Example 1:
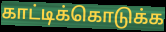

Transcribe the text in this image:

காட்டிக்கொடுக்க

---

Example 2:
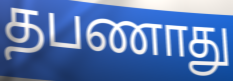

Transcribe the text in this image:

தபணாது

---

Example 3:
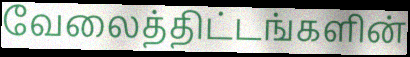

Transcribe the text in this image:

வேலைத்திட்டங்களின்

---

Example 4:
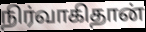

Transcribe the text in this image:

நிர்வாகிதான்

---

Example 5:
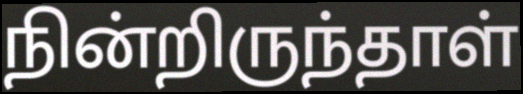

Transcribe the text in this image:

நின்றிருந்தாள்